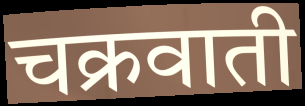
चक्रवाती